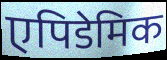
एपिडेमिक